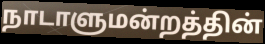
நாடாளுமன்றத்தின்